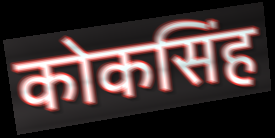
कोकसिंह